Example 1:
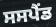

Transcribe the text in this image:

ਸਸਪੈੰਡ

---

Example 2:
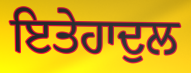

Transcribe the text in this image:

ਇਤੇਹਾਦੁਲ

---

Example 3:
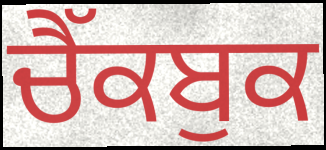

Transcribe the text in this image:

ਚੈੱਕਬੁਕ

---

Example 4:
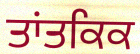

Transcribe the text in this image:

ਤਾਂਤਕਿਕ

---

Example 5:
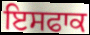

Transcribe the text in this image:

ਇਸਫਾਕ